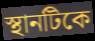
স্থানটিকে